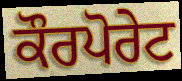
ਕੌਰਪੋਰੇਟ